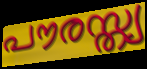
പൗരസ്ത്യ